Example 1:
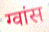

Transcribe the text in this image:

ग्वांस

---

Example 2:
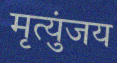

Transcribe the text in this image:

मृत्युंजय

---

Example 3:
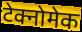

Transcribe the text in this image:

टेक्नोमेक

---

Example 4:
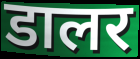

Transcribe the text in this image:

डालर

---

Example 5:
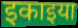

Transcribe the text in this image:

इकाइया